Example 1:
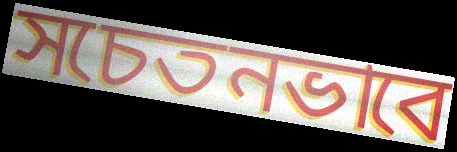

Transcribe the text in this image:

সচেতনভাবে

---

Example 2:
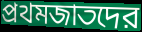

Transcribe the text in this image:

প্রথমজাতদের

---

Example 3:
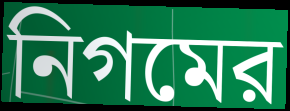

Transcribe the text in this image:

নিগমের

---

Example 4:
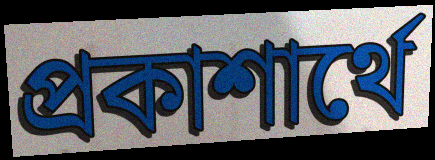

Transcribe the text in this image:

প্রকাশার্থে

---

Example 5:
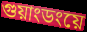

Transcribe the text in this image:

গুয়াংডংয়ে